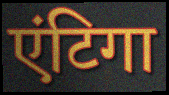
एंटिगा